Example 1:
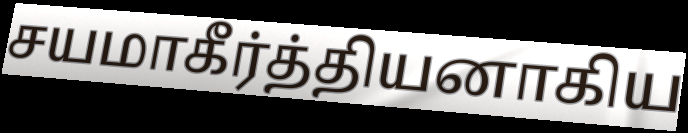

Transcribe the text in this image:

சயமாகீர்த்தியனாகிய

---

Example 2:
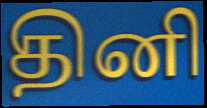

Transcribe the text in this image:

தினி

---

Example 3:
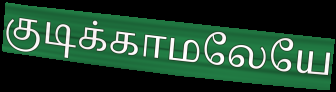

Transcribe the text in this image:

குடிக்காமலேயே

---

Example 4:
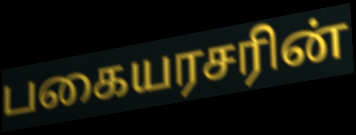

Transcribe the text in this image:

பகையரசரின்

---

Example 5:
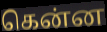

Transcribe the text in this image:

கென்ன